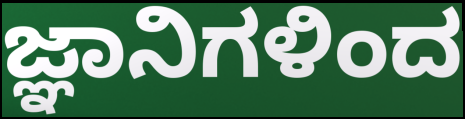
ಜ್ಞಾನಿಗಳಿಂದ